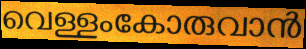
വെള്ളംകോരുവാൻ